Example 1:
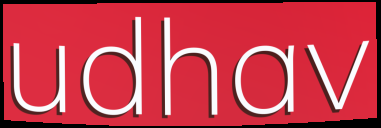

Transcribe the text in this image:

udhav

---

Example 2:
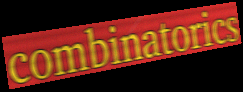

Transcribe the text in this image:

combinatorics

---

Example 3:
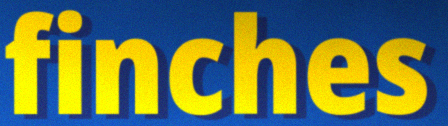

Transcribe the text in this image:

finches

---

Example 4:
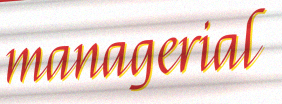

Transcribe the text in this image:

managerial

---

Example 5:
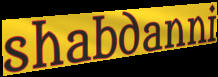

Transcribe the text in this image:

shabdanni